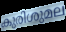
കുരിശുമല